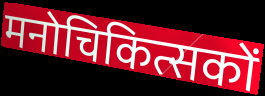
मनोचिकित्सकों